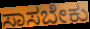
ಸಾಸಬೇಕು